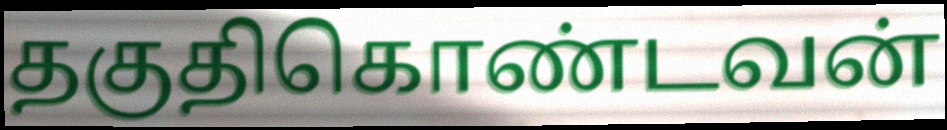
தகுதிகொண்டவன்